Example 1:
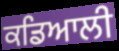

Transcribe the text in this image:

ਕਡਿਆਲੀ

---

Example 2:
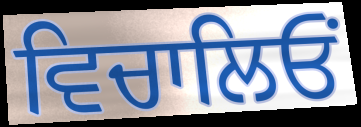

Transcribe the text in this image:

ਵਿਚਾਲਿਓਂ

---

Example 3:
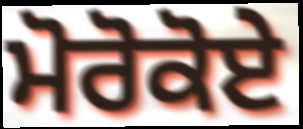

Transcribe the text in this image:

ਮੋਰੋਕੋਏ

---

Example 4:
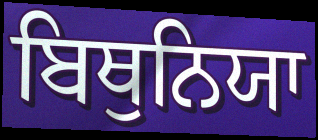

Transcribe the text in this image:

ਬਿਥੁਨਿਯਾ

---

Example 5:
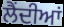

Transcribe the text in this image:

ਲੈਂਦੀਆਂ